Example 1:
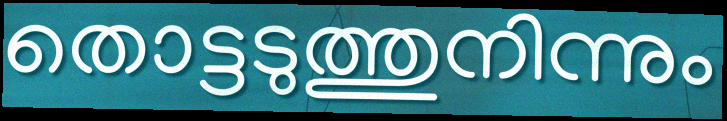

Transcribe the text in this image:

തൊട്ടടുത്തുനിന്നും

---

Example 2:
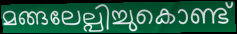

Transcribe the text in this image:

മങ്ങലേല്പിച്ചുകൊണ്ട്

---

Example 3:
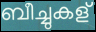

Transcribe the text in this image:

ബീച്ചുകള്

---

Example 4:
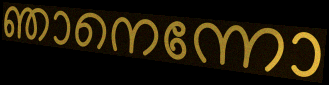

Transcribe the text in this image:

ഞാനെന്നോ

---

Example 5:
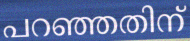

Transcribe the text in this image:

പറഞ്ഞതിന്